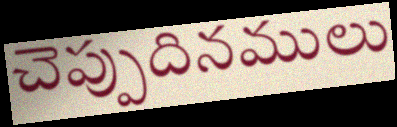
చెప్పుదినములు